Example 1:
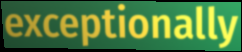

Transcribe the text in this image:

exceptionally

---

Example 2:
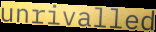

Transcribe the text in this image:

unrivalled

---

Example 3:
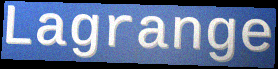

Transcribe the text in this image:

Lagrange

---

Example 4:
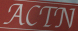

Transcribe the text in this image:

ACTN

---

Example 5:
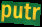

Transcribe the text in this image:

putr